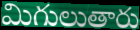
మిగులుతారు